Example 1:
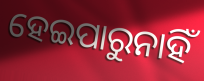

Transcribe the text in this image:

ହେଇପାରୁନାହିଁ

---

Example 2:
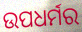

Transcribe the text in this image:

ଉପଧର୍ମର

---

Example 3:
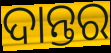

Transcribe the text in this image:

ଦାନ୍ତର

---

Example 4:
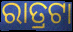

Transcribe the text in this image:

ରାତ୍ରଟା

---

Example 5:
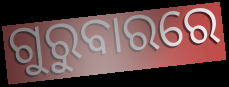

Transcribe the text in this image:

ଗୁରୁବାରରେ